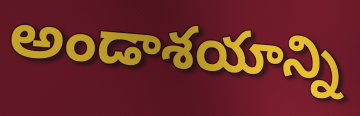
అండాశయాన్ని